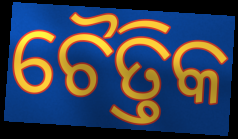
ଚୈତ୍ତିକ